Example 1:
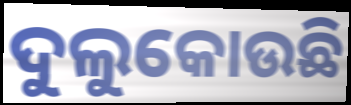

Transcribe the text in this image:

ଦୁଲୁକୋଉଛି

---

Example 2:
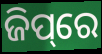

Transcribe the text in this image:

ଜିପ୍‌ରେ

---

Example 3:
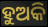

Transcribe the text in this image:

ହୁଅକି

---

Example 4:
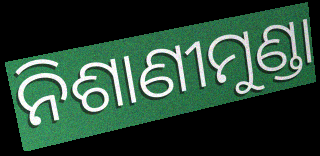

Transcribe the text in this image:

ନିଶାଣୀମୁଣ୍ଡା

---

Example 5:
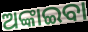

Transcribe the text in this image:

ଅଙ୍କାଇବା